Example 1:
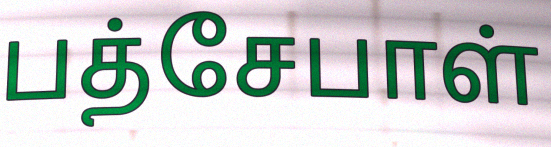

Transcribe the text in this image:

பத்சேபாள்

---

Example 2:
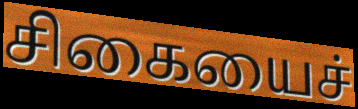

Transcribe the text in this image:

சிகையைச்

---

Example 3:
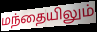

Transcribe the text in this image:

மந்தையிலும்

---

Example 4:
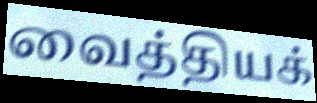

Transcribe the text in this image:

வைத்தியக்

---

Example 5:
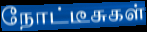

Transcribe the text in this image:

நோட்டீசுகள்